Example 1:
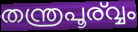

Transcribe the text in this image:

തന്ത്രപൂര്വ്വം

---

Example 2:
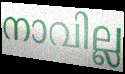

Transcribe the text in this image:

നാവില്ല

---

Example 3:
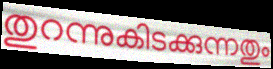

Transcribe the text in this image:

തുറന്നുകിടക്കുന്നതും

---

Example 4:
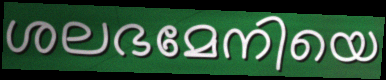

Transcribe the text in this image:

ശലഭമേനിയെ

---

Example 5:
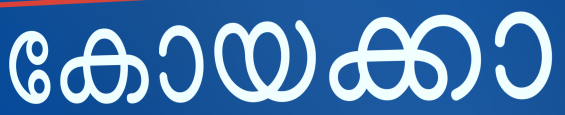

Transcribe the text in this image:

കോയക്കാ